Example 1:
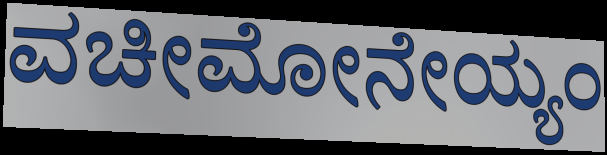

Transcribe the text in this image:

ವಚೀಮೋನೇಯ್ಯಂ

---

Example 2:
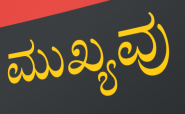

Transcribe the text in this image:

ಮುಖ್ಯವು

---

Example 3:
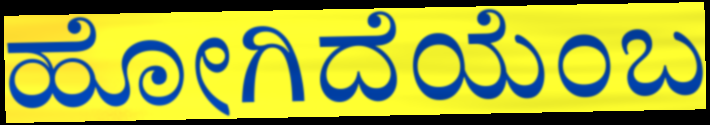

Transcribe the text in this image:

ಹೋಗಿದೆಯೆಂಬ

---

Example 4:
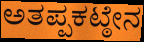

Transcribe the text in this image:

ಅತಪ್ಪಕಟ್ಠೇನ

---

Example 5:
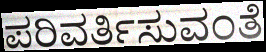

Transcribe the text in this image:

ಪರಿವರ್ತಿಸುವಂತೆ